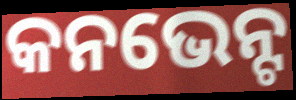
କନଭେନ୍ଟ